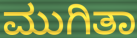
ಮುಗಿತಾ